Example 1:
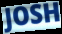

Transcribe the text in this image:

JOSH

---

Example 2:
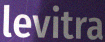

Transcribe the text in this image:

levitra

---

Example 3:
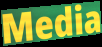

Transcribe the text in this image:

Media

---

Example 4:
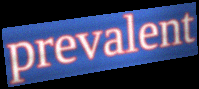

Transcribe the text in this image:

prevalent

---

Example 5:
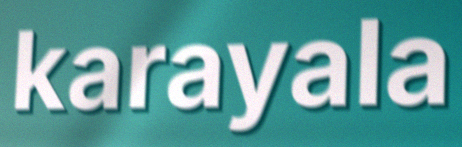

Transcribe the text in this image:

karayala